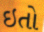
ઇતો